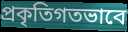
প্রকৃতিগতভাবে